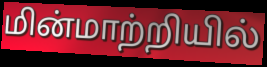
மின்மாற்றியில்